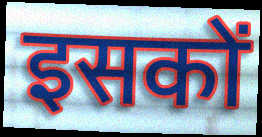
इसकों